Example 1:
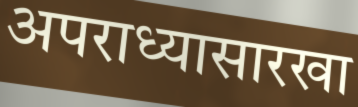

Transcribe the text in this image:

अपराध्यासारखा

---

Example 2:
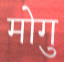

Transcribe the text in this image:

मोगु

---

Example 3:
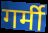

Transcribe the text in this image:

गर्मी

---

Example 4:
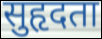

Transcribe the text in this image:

सुहृदता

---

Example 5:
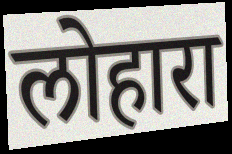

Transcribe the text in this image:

लोहारा